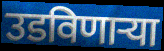
उडविणार्‍या